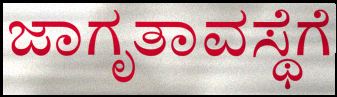
ಜಾಗೃತಾವಸ್ಥೆಗೆ